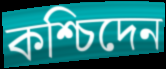
কশ্চিদেন